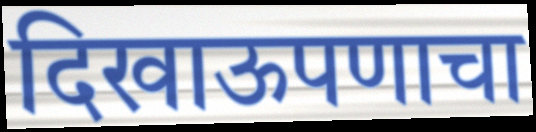
दिखाऊपणाचा